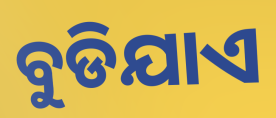
ବୁଡିଯାଏ